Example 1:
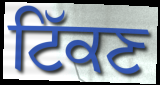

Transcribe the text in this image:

ਟਿੱਕਣ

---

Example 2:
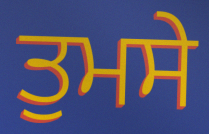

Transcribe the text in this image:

ਤੁਮਸੇ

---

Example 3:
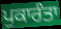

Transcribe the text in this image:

ਪੁਕਾਰੰਤਾ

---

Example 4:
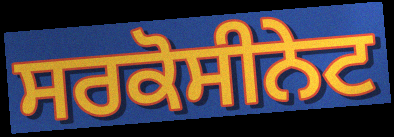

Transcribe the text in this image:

ਸਰਕੋਸੀਨੇਟ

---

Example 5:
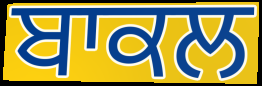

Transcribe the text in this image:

ਬਾਕਲ